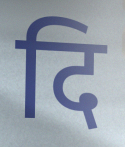
दि